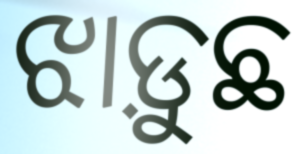
ଝାଡ଼ୁଛ